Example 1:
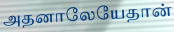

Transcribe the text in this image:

அதனாலேயேதான்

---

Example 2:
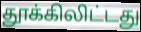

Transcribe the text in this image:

தூக்கிலிட்டது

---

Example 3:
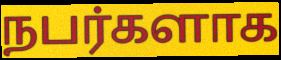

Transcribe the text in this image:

நபர்களாக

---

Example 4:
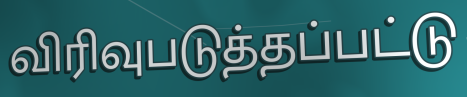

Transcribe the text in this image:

விரிவுபடுத்தப்பட்டு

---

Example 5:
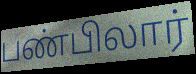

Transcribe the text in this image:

பண்பிலார்